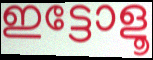
ഇട്ടോളൂ